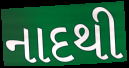
નાદથી